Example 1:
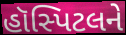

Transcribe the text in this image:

હૉસ્પિટલને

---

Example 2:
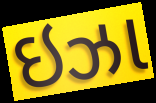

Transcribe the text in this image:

ઇઝા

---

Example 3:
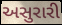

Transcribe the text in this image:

અસુરારી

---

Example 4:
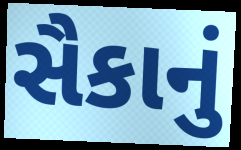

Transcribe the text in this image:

સૈકાનું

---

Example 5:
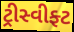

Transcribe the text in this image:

ટ્રીસ્વીફ્ટ